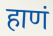
हाणं